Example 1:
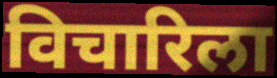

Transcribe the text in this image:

विचारिला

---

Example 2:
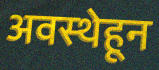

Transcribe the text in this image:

अवस्थेहून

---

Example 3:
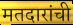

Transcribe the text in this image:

मतदारांची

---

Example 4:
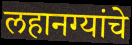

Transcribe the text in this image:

लहानग्यांचे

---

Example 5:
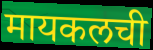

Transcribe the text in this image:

मायकलची